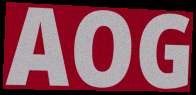
AOG